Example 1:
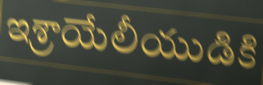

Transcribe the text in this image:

ఇశ్రాయేలీయుడికి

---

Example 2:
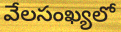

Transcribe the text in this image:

వేలసంఖ్యలో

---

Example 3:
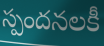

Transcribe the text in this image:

స్పందనలకీ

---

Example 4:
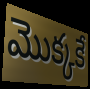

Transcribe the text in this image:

మొక్కకే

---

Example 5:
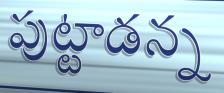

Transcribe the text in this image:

పుట్టాడన్న